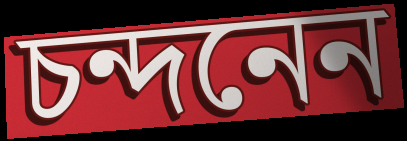
চন্দনেন